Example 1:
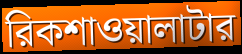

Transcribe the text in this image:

রিকশাওয়ালাটার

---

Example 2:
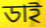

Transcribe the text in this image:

ডাই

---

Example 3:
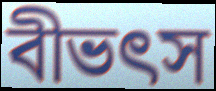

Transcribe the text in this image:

বীভৎস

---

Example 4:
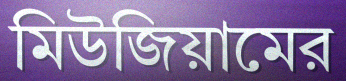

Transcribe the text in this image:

মিউজিয়ামের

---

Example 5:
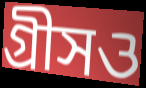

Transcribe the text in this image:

গ্রীসও